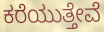
ಕರೆಯುತ್ತೇವೆ